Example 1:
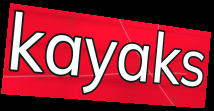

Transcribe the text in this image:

kayaks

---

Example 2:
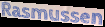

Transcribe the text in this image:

Rasmussen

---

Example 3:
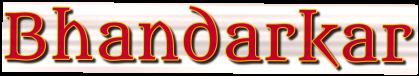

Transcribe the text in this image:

Bhandarkar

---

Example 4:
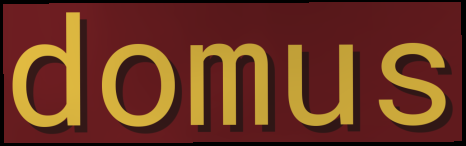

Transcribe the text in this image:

domus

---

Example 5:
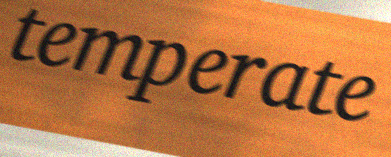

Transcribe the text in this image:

temperate